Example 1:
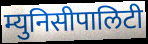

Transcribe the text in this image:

म्युनिसीपालिटी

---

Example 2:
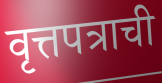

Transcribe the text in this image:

वृत्तपत्राची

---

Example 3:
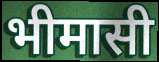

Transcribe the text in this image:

भीमासी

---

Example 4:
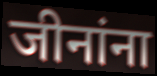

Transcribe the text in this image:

जीनांना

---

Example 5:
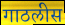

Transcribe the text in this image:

गाठलीस